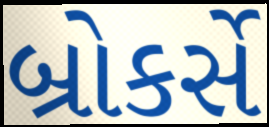
બ્રોકર્સે